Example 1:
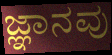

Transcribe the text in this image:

ಜ್ಞಾನವು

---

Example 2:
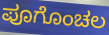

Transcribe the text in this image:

ಪೂಗೊಂಚಲ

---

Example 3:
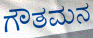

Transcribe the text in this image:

ಗೌತಮನ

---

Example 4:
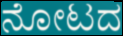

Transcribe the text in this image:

ನೋಟದ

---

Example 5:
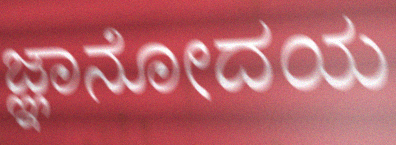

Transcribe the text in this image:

ಜ್ಞಾನೋದಯ